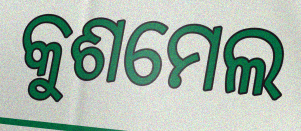
କୁଶମେଲ